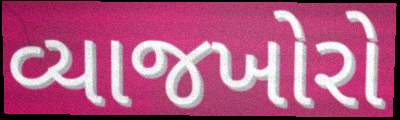
વ્યાજખોરો